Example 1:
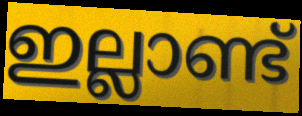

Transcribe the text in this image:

ഇല്ലാണ്ട്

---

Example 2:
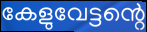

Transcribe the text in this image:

കേളുവേട്ടന്റെ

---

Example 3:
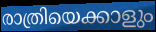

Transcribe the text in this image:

രാത്രിയെക്കാളും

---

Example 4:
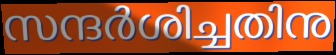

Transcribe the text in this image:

സന്ദർശിച്ചതിനു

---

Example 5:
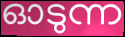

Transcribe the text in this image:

ഓടുന്ന